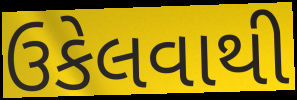
ઉકેલવાથી